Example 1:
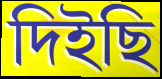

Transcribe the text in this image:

দিইছি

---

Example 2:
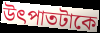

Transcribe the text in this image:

উৎপাতটাকে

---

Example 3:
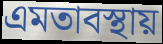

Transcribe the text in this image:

এমতাবস্থায়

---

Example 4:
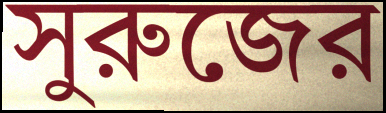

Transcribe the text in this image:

সুরুজের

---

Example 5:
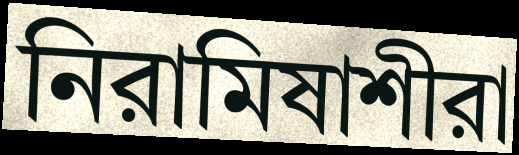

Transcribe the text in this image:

নিরামিষাশীরা